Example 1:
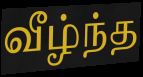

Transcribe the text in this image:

வீழ்ந்த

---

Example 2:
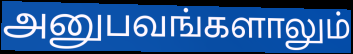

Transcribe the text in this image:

அனுபவங்களாலும்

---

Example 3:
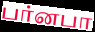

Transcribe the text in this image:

பர்னபா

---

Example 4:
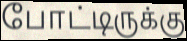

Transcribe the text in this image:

போட்டிருக்கு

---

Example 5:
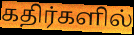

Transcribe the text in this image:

கதிர்களில்